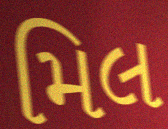
મિલ